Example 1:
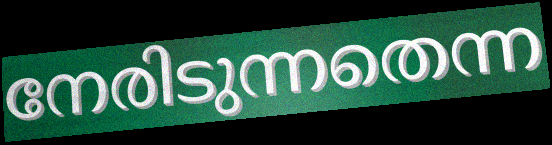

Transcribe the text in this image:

നേരിടുന്നതെന്ന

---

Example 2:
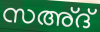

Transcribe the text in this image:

സഅ്ദ്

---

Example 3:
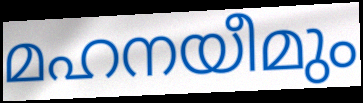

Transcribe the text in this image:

മഹനയീമും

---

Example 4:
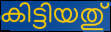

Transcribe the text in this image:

കിട്ടിയതു്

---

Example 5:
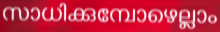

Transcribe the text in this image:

സാധിക്കുമ്പോഴെല്ലാം